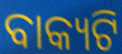
ବାକ୍ୟଟି